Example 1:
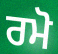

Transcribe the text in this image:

ਰਮੋ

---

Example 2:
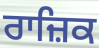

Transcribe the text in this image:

ਰਾਜ਼ਿਕ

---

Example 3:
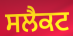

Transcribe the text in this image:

ਸਲੈਕਟ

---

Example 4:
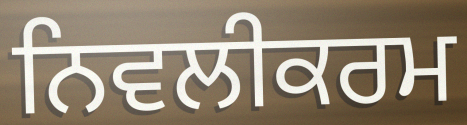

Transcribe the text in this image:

ਨਿਵਲੀਕਰਮ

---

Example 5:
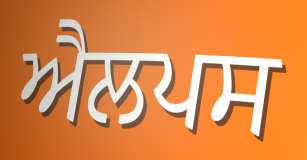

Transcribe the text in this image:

ਐਲਪਸ